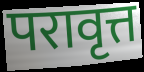
परावृत्त